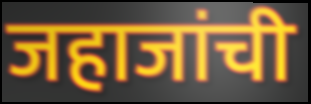
जहाजांची